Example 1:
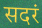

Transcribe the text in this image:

सदरं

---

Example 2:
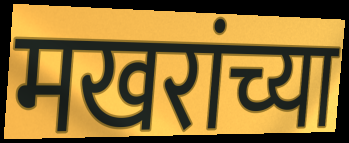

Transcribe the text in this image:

मखरांच्या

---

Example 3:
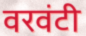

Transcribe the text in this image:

वरवंटी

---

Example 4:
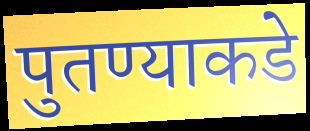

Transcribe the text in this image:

पुतण्याकडे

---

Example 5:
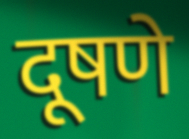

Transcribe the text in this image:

दूषणे